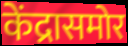
केंद्रासमोर